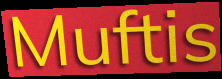
Muftis